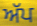
ਅੱਪ